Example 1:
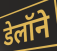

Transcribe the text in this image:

डेलॉने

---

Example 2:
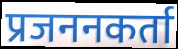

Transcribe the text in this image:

प्रजननकर्ता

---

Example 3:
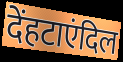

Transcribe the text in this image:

देंहटाएंदिल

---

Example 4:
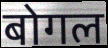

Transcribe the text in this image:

बोगल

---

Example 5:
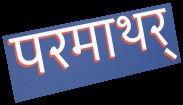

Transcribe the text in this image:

परमाथर्